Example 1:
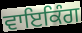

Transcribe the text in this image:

ਵਾਇਕਿੰਗ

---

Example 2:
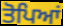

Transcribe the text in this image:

ਤੋਪਿਆਂ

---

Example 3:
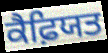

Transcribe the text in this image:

ਕੈਫ਼ਿਯਤ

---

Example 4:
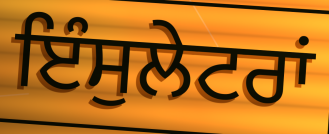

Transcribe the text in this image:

ਇੰਸੁਲੇਟਰਾਂ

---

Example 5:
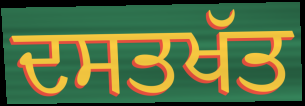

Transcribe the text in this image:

ਦਸਤਖੱਤ